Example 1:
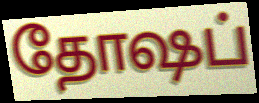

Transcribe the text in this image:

தோஷப்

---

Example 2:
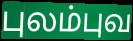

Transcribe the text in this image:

புலம்புவ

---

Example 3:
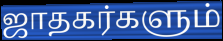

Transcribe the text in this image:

ஜாதகர்களும்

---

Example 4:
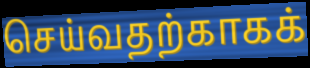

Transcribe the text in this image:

செய்வதற்காகக்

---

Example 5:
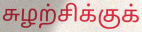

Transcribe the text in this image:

சுழற்சிக்குக்